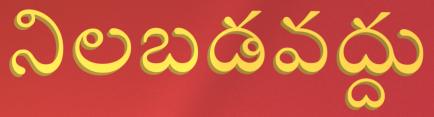
నిలబడవద్దు